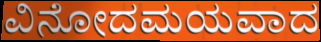
ವಿನೋದಮಯವಾದ